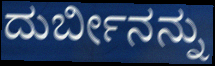
ದುರ್ಬೀನನ್ನು